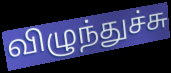
விழுந்துச்சு